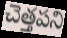
చెత్తపని